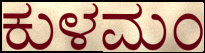
ಕುಳಮಂ